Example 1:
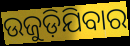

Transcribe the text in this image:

ଉଜୁଡ଼ିଯିବାର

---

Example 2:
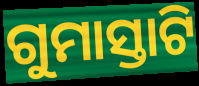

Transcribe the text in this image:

ଗୁମାସ୍ତାଟି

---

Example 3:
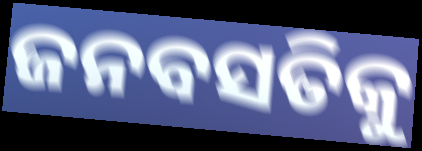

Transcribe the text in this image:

ଜନବସତିକୁ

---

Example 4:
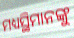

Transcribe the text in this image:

ମଧ୍ୟସ୍ଥିମାନଙ୍କୁ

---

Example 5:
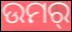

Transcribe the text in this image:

ଉମର୍